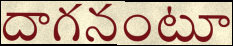
దాగనంటూ